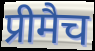
प्रीमैच